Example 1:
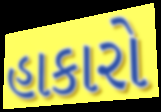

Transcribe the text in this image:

હાકારો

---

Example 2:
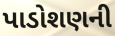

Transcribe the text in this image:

પાડોશણની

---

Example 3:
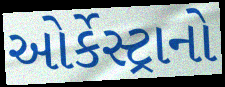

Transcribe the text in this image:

ઓર્કેસ્ટ્રાનો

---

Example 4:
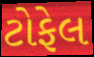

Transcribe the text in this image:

ટોફેલ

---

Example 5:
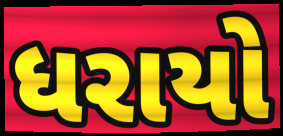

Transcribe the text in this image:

ધરાયો